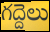
గద్దెలు